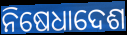
ନିଷେଧାଦେଶ